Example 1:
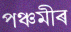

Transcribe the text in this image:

পঞ্চমীৰ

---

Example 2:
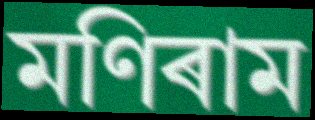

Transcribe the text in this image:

মণিৰাম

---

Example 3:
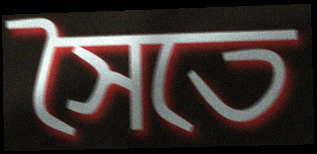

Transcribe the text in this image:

সৈতে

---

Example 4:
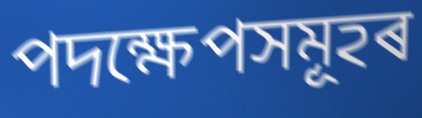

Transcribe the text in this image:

পদক্ষেপসমূহৰ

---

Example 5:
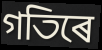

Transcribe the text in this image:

গতিৰে